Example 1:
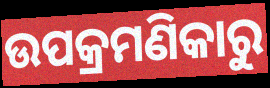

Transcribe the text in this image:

ଉପକ୍ରମଣିକାରୁ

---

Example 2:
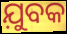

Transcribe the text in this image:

ଯ଼ୁବକ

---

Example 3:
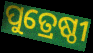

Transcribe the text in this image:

ପୁତ୍ରେଷ୍ଠୀ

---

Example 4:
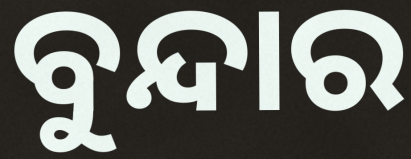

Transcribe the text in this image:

ବୁନ୍ଦାର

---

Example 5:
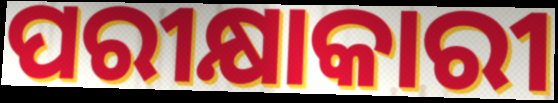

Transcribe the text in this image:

ପରୀକ୍ଷାକାରୀ